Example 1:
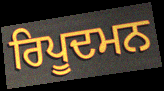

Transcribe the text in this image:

ਰਿਪੂਦਮਨ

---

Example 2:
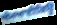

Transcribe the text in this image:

ਐਮਆਈਕਿਊ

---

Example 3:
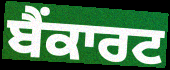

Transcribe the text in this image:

ਬੈਂਕਾਰਟ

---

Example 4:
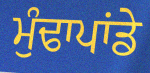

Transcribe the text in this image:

ਮੁੰਢਾਪਾਂਡੇ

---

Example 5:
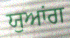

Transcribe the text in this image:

ਯੁਆਂਗ